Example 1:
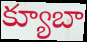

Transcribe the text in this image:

క్యూబా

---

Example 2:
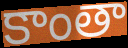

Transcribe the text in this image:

కాంతా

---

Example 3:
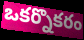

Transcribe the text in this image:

ఒకర్నొకరం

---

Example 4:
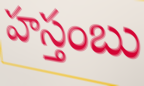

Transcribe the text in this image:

హస్తంబు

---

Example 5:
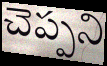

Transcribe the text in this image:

చెప్పని